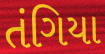
તંગિયા